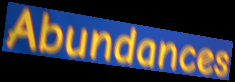
Abundances